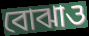
বোঝাও